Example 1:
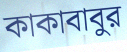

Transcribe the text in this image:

কাকাবাবুর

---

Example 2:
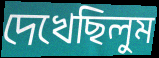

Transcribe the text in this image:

দেখেছিলুম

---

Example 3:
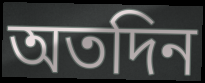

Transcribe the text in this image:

অতদিন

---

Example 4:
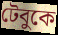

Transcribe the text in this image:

টেবুকে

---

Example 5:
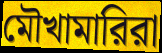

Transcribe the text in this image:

মৌখামারিরা